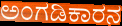
ಅಂಗಡಿಕಾರನ